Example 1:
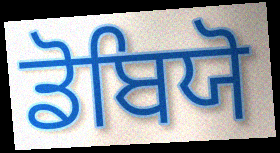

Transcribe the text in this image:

ਡੋਬਿਯੋ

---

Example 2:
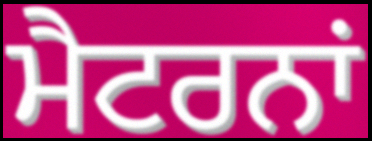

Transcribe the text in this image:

ਮੈਟਰਨਾਂ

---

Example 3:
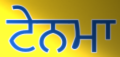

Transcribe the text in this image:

ਟੇਨਮਾ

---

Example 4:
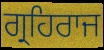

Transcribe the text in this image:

ਗ੍ਰਹਿਰਾਜ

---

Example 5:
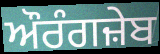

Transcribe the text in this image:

ਔਰੰਗਜ਼ੇਬ